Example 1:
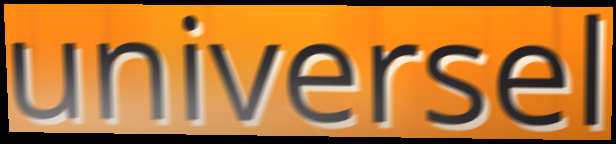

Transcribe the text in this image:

universel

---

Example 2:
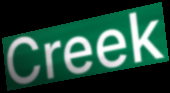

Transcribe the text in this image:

Creek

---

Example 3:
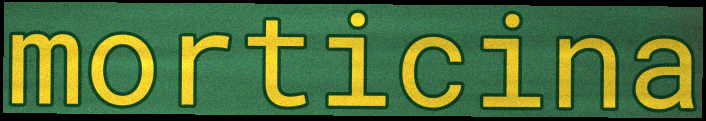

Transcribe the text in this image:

morticina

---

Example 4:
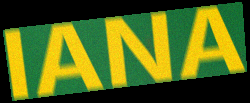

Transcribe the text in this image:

IANA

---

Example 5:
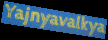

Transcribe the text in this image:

Yajnyavalkya